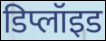
डिप्लॉइड